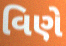
વિણે